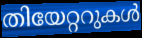
തിയേറ്ററുകൾ